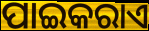
ପାଇକରାଏ